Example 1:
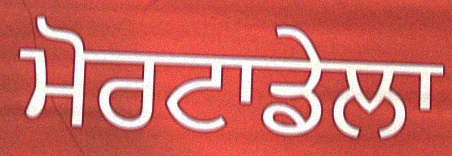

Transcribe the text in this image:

ਮੋਰਟਾਡੇਲਾ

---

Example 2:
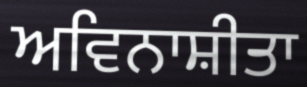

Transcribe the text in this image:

ਅਵਿਨਾਸ਼ੀਤਾ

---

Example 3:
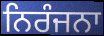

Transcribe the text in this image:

ਨਿਰੰਜਨਾ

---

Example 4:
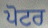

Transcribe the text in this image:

ਪੋਟਰ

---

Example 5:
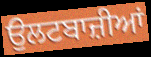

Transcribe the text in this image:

ਉਲਟਬਾਜ਼ੀਆਂ